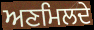
ਅਣਮਿਲਦੇ